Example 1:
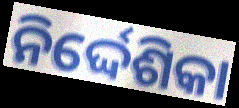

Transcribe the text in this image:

ନିର୍ଦ୍ଦେଶିକା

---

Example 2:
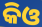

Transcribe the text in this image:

କିଓ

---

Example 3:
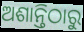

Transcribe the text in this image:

ଅଶାନ୍ତିଠାରୁ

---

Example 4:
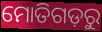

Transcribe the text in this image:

ମୋତିଗଡ଼ରୁ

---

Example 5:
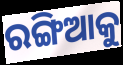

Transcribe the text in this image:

ରଙ୍ଗିଆକୁ